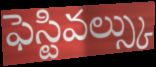
ఫెస్టివల్స్కు